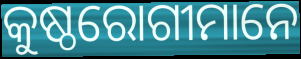
କୁଷ୍ଠରୋଗୀମାନେ